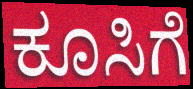
ಕೂಸಿಗೆ